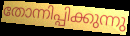
തോന്നിപ്പിക്കുന്നു